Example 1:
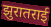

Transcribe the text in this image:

झुरातराई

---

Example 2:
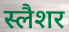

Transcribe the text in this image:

स्लैशर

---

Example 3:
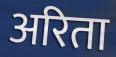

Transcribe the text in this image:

अरिता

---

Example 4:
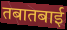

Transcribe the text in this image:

तबातबाई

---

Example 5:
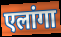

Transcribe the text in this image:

एलांगा